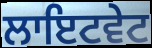
ਲਾਇਟਵੇਟ